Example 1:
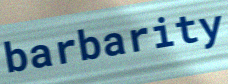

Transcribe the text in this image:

barbarity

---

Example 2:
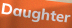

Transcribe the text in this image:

Daughter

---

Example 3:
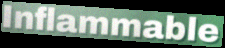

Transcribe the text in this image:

Inflammable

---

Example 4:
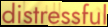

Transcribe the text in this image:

distressful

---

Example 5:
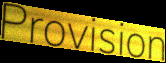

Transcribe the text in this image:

Provision